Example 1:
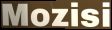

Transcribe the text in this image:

Mozisi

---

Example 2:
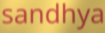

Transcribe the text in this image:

sandhya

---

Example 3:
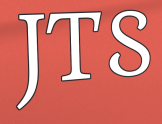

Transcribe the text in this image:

JTS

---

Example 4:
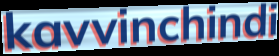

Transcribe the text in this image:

kavvinchindi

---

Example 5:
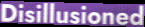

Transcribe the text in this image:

Disillusioned